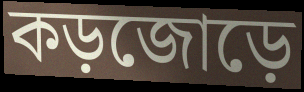
কড়জোড়ে